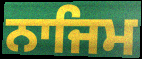
ਨਾਜਿਮ